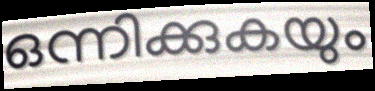
ഒന്നിക്കുകയും